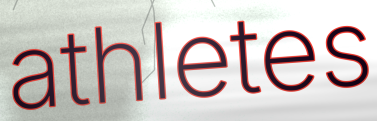
athletes